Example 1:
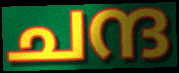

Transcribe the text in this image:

ചന്ദ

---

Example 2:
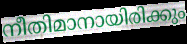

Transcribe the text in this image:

നീതിമാനായിരിക്കും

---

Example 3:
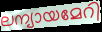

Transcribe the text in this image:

ലന്യായമേറി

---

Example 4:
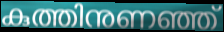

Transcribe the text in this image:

കുത്തിനുണഞ്ഞ്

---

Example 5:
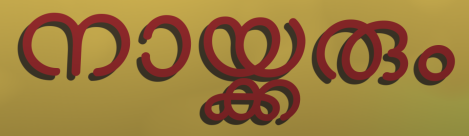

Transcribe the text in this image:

നായ്ക്കരും